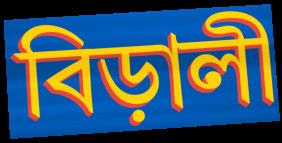
বিড়ালী